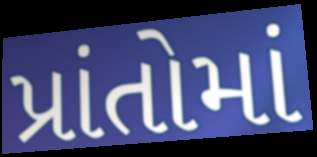
પ્રાંતોમાં